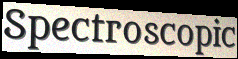
Spectroscopic